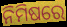
ନିମିଷରେ